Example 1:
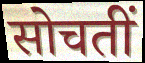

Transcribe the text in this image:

सोचतीं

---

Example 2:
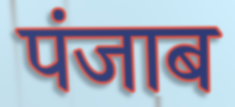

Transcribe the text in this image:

पंजाब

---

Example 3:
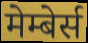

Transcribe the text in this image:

मेम्बेर्स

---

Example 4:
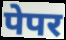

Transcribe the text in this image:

पेपर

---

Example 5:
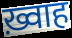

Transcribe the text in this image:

ख़्वाह